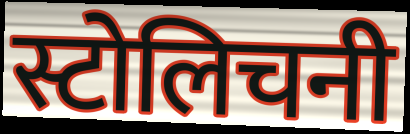
स्टोलिचनी